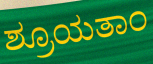
ಶ್ರೂಯತಾಂ